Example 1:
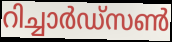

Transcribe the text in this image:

റിച്ചാർഡ്സൺ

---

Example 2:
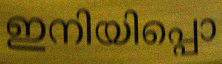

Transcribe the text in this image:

ഇനിയിപ്പൊ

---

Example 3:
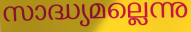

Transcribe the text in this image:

സാദ്ധ്യമല്ലെന്നു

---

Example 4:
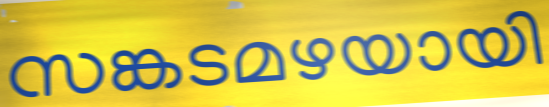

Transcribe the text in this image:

സങ്കടമഴയായി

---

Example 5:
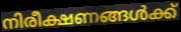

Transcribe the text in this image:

നിരീക്ഷണങ്ങൾക്ക്